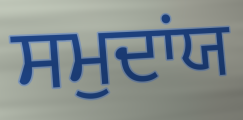
ਸਮੁਦਾਂਯ